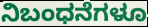
ನಿಬಂಧನೆಗಳೂ